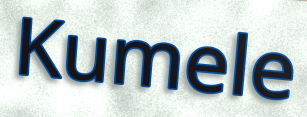
Kumele